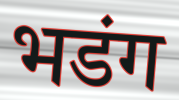
भडंग